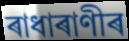
ৰাধাৰাণীৰ